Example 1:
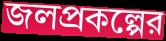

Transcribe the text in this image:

জলপ্রকল্পের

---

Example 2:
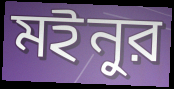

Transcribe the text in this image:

মইনুর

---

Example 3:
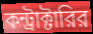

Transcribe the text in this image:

কন্ট্রাক্টারির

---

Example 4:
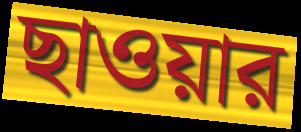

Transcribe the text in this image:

ছাওয়ার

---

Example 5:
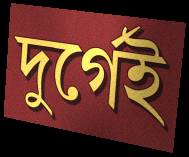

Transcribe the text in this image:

দুর্গেই